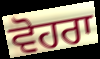
ਵੋਹਰਾ